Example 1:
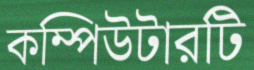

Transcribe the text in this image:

কম্পিউটারটি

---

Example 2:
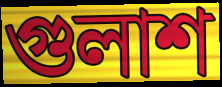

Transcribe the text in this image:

গুলাশ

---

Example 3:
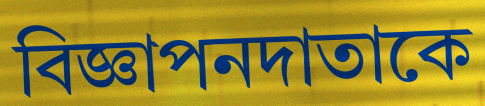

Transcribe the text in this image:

বিজ্ঞাপনদাতাকে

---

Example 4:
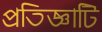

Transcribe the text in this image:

প্রতিজ্ঞাটি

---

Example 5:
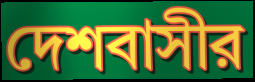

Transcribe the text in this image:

দেশবাসীর